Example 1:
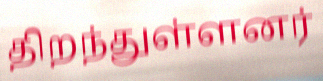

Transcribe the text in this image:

திறந்துள்ளனர்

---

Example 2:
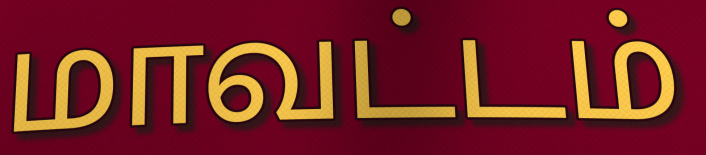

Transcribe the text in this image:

மாவட்டம்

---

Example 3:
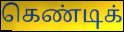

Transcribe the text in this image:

கெண்டிக்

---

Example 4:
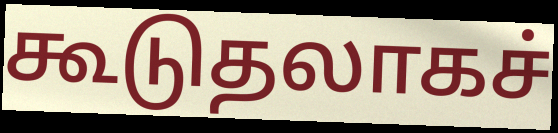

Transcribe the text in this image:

கூடுதலாகச்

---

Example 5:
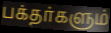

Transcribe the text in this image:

பக்தர்களும்